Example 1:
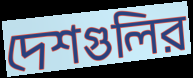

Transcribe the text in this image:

দেশগুলির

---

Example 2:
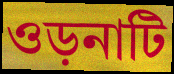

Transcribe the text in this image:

ওড়নাটি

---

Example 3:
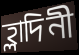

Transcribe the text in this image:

হ্লাদিনী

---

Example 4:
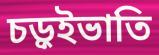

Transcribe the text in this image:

চড়ুইভাতি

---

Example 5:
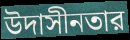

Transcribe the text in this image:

উদাসীনতার